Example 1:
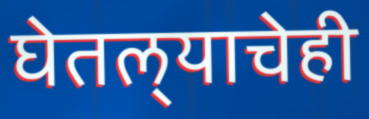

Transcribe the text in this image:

घेतल्याचेही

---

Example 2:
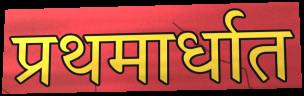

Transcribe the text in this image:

प्रथमार्धात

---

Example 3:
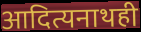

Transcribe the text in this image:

आदित्यनाथही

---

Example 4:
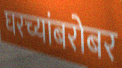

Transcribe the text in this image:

घरच्यांबरोबर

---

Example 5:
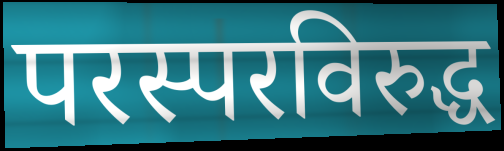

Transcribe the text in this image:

परस्परविरुद्ध